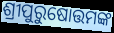
ଶ୍ରୀପୁରୁଷୋତ୍ତମଙ୍କ